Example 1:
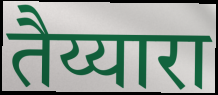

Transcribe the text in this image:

तैय्यारा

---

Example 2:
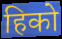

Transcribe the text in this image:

हिको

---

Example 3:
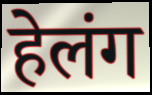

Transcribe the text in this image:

हेलंग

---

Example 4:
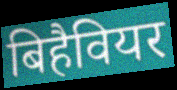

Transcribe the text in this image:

बिहैवियर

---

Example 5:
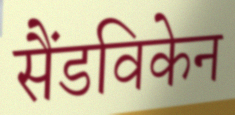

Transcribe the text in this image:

सैंडविकेन